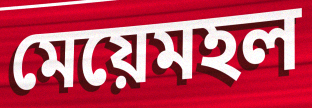
মেয়েমহল